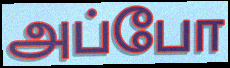
அப்போ